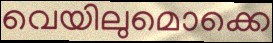
വെയിലുമൊക്കെ